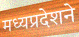
मध्यप्रदेशने